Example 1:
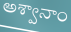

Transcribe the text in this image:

అశ్వానాం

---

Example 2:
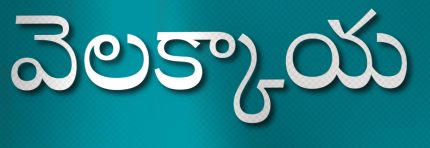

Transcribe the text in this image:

వెలక్కాయ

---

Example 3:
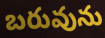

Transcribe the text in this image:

బరువును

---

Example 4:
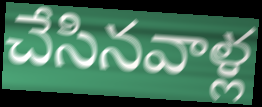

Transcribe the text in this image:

చేసినవాళ్ల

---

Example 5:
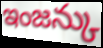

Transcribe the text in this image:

ఇంజన్కు